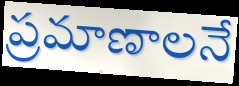
ప్రమాణాలనే